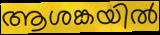
ആശങ്കയിൽ